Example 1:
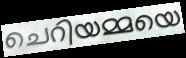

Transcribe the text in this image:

ചെറിയമ്മയെ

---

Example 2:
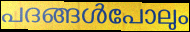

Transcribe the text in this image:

പദങ്ങൾപോലും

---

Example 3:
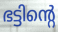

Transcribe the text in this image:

ഭട്ടിന്റെ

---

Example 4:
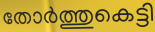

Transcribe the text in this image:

തോർത്തുകെട്ടി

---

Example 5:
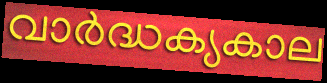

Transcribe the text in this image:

വാർദ്ധക്യകാല